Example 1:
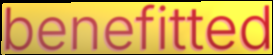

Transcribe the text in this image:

benefitted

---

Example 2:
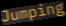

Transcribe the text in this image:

Jumping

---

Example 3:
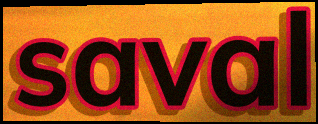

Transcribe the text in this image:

saval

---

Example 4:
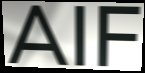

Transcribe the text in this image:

AIF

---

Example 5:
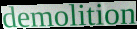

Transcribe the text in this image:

demolition